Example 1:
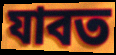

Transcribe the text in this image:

যাবত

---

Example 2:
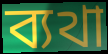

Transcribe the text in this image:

ব্যথা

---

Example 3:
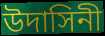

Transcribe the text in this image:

উদাসিনী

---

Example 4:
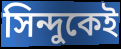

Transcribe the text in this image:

সিন্দুকেই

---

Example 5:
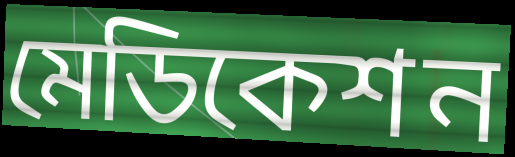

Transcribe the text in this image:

মেডিকেশন